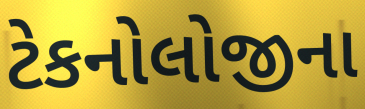
ટેકનોલોજીના